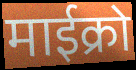
माईक्रो